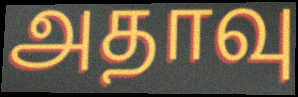
அதாவு